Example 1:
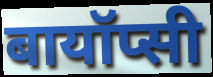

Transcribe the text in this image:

बायॉप्सी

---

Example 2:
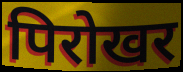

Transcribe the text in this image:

पिरोखर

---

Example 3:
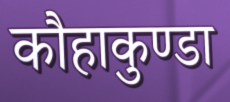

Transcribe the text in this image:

कौहाकुण्डा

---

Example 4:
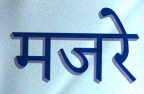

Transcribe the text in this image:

मजरे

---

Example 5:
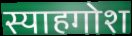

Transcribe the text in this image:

स्याहगोश